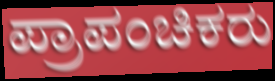
ಪ್ರಾಪಂಚಿಕರು